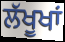
ਲੱਖੂਖਾਂ